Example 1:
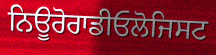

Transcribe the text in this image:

ਨਿਊਰੋਰਾਡੀਓਲੋਜਿਸਟ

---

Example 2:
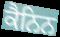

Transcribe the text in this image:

ਕੈਨਿਨ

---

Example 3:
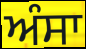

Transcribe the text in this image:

ਅੰਸਾ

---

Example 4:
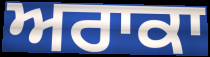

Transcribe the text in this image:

ਅਰਾਕਾ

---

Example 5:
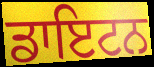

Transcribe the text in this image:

ਡਾਇਟਨ